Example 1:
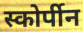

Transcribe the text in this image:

स्कोर्पीन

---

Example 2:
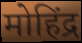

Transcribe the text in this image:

मोहिंद्र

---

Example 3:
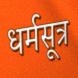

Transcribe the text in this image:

धर्मसूत्र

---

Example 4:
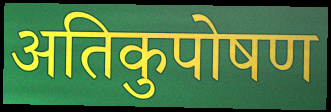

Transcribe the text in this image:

अतिकुपोषण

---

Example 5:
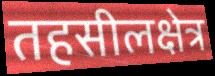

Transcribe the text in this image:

तहसीलक्षेत्र